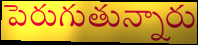
పెరుగుతున్నారు